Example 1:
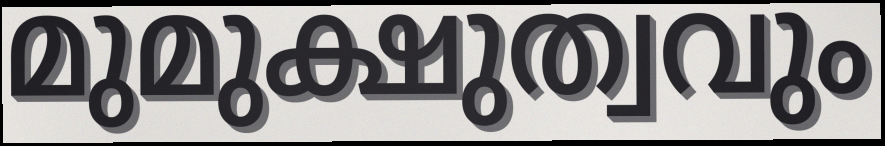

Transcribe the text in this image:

മുമുക്ഷുത്വവും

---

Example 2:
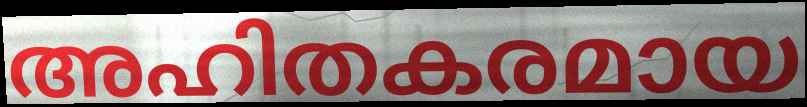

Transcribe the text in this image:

അഹിതകരമായ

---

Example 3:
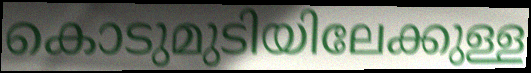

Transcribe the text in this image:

കൊടുമുടിയിലേക്കുള്ള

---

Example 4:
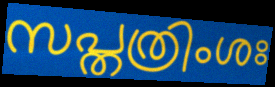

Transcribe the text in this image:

സപ്തത്രിംശഃ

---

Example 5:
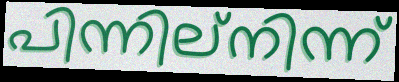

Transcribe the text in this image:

പിന്നില്നിന്ന്